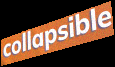
collapsible